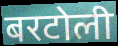
बरटोली